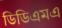
ডিডিএমএ